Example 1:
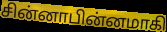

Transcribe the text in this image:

சின்னாபின்னமாகி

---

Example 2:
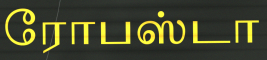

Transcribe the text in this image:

ரோபஸ்டா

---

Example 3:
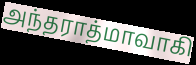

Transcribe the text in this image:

அந்தராத்மாவாகி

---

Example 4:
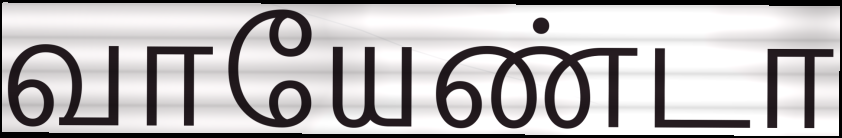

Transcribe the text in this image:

வாயேண்டா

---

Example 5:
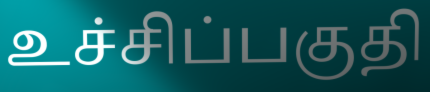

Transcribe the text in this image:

உச்சிப்பகுதி